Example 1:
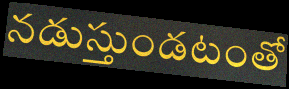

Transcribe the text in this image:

నడుస్తుండటంతో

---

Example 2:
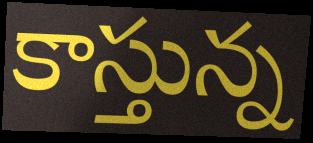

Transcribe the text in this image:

కాస్తున్న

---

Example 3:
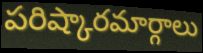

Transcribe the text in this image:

పరిష్కారమార్గాలు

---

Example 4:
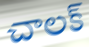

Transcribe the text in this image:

చాలక్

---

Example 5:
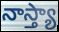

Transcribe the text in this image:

నాస్త్యా